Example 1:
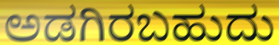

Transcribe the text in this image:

ಅಡಗಿರಬಹುದು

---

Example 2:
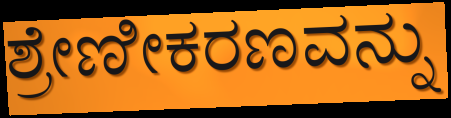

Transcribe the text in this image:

ಶ್ರೇಣೀಕರಣವನ್ನು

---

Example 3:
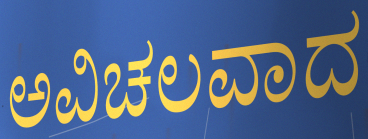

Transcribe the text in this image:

ಅವಿಚಲವಾದ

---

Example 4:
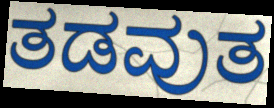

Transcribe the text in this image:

ತಡವುತ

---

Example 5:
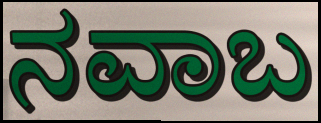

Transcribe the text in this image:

ನವಾಬ